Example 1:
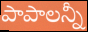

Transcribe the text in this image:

పాపాలన్నీ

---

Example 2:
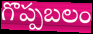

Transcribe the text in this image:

గొప్పబలం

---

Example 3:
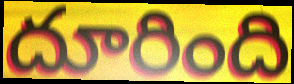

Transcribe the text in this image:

దూరింది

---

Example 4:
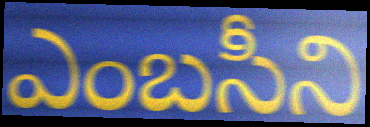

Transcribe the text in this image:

ఎంబసీని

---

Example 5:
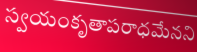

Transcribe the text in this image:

స్వయంకృతాపరాధమేనని